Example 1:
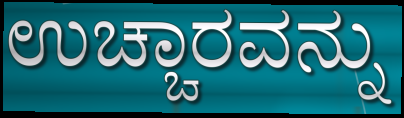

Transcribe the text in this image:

ಉಚ್ಚಾರವನ್ನು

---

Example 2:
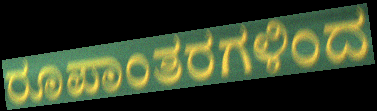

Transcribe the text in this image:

ರೂಪಾಂತರಗಳಿಂದ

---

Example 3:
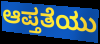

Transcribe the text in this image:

ಆಪ್ತತೆಯು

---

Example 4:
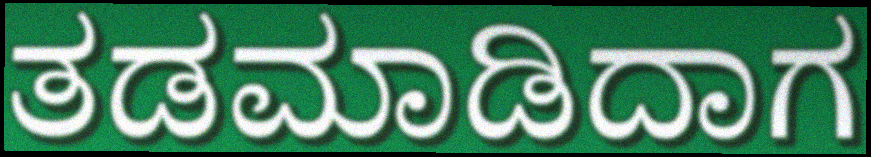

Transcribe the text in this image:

ತಡಮಾಡಿದಾಗ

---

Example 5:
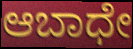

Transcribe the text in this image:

ಆಬಾಧೇ